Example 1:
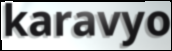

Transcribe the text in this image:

karavyo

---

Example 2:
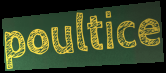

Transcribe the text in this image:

poultice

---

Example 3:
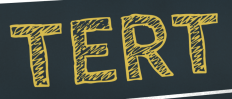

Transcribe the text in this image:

TERT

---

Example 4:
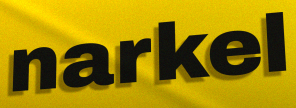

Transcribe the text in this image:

narkel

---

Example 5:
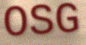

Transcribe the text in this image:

OSG